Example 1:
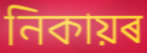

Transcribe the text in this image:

নিকায়ৰ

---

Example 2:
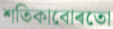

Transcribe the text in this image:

শতিকাবোৰতো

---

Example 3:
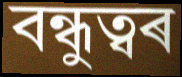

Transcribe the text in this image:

বন্ধুত্বৰ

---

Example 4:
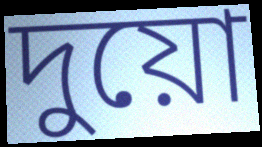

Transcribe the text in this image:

দুয়ো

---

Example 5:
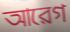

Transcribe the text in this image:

আৱেগ